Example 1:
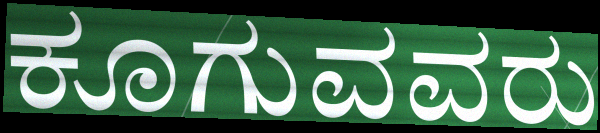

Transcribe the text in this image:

ಕೂಗುವವರು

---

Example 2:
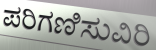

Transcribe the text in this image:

ಪರಿಗಣಿಸುವಿರಿ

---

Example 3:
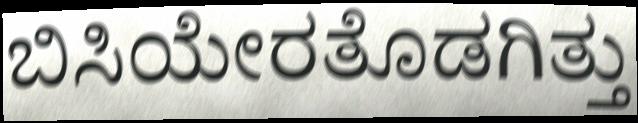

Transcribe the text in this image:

ಬಿಸಿಯೇರತೊಡಗಿತ್ತು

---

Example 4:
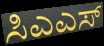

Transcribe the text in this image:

ಸಿಎಎಸ್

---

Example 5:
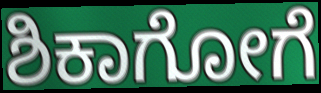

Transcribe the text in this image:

ಶಿಕಾಗೋಗೆ